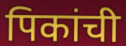
पिकांची